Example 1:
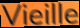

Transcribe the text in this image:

Vieille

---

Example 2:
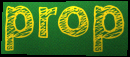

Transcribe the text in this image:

prop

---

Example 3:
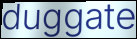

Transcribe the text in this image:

duggate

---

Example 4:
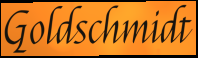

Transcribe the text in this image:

Goldschmidt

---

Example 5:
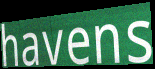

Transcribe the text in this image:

havens